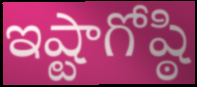
ఇష్టాగోష్ఠి